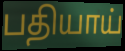
பதியாய்